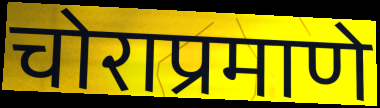
चोराप्रमाणे